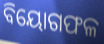
ବିୟୋଗଫଳ